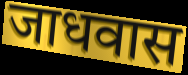
जाधवास